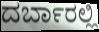
ದರ್ಬಾರಲ್ಲಿ